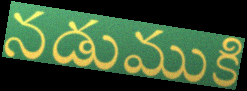
నడుముకి